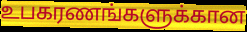
உபகரணங்களுக்கான